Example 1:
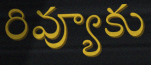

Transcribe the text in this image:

రివ్యూకు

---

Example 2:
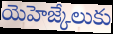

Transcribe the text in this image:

యెహెజ్కేలుకు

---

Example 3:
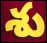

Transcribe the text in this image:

శు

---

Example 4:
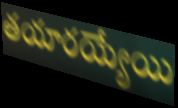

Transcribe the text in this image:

తయారయ్యేయి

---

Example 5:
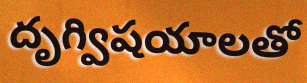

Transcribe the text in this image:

దృగ్విషయాలతో